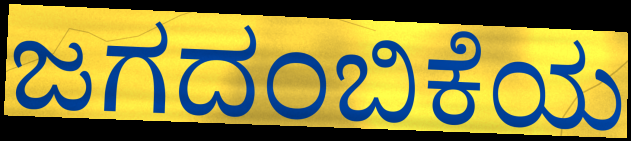
ಜಗದಂಬಿಕೆಯ